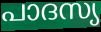
പാദസ്യ